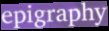
epigraphy